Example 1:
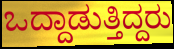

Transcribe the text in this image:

ಒದ್ದಾಡುತ್ತಿದ್ದರು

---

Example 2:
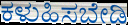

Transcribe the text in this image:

ಕಳುಹಿಸಬೇಡಿ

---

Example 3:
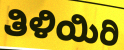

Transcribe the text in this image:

ತಿಳಿಯಿರಿ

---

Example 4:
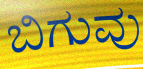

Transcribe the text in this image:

ಬಿಗುವು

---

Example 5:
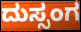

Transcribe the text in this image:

ದುಸ್ಸಂಗ